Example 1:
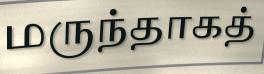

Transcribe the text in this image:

மருந்தாகத்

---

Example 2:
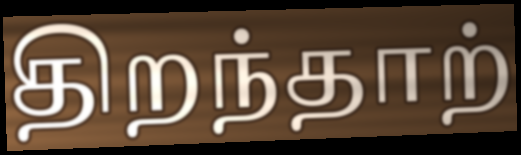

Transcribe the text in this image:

திறந்தாற்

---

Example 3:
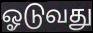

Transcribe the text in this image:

ஓடுவது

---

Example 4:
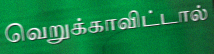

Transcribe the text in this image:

வெறுக்காவிட்டால்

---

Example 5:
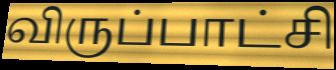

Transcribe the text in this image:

விருப்பாட்சி